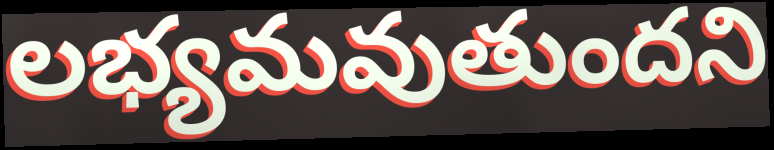
లభ్యమవుతుందని